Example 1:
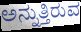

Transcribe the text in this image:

ಅನ್ನುತ್ತಿರುವ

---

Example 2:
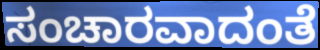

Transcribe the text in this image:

ಸಂಚಾರವಾದಂತೆ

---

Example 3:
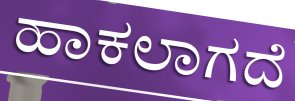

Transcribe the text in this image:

ಹಾಕಲಾಗದೆ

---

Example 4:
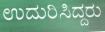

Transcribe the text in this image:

ಉದುರಿಸಿದ್ದರು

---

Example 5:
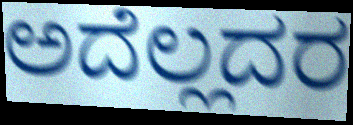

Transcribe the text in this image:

ಅದೆಲ್ಲದರ